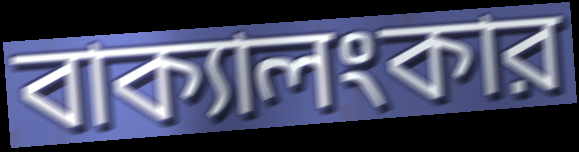
বাক্যালংকার